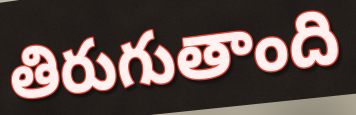
తిరుగుతాంది